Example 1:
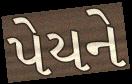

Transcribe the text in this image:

પેયને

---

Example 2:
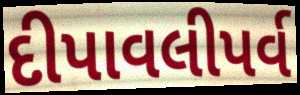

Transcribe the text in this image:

દીપાવલીપર્વ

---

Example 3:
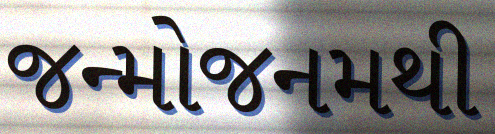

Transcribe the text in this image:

જન્મોજનમથી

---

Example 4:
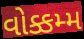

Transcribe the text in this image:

વોક્કમ્મ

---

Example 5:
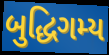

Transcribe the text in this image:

બુદ્ધિગમ્ય